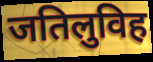
जतिलुविह